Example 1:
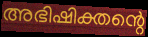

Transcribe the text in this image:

അഭിഷിക്തന്റെ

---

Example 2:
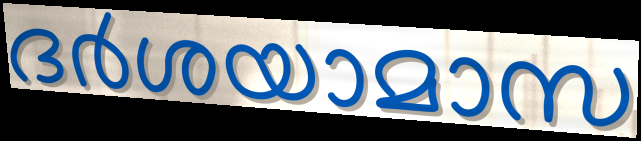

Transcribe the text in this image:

ദർശയാമാസ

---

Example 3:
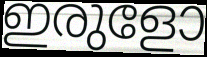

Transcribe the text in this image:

ഇരുളോ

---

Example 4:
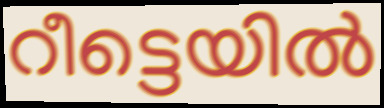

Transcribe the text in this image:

റീട്ടെയിൽ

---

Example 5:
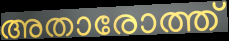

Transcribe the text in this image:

അതാരോത്ത്